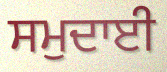
ਸਮੁਦਾਈ